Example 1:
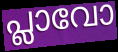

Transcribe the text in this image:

പ്ലാവോ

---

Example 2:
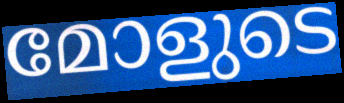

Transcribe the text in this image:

മോളുടെ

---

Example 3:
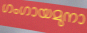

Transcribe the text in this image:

ഗംഗായമുനാ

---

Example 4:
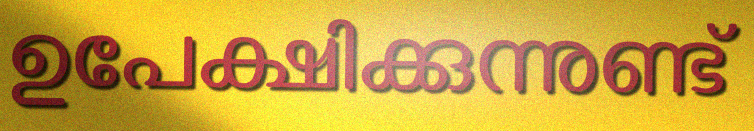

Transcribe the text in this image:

ഉപേക്ഷിക്കുന്നുണ്ട്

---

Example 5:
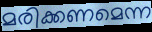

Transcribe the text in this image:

മരിക്കണമെന്ന